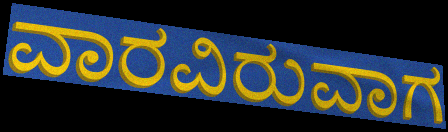
ವಾರವಿರುವಾಗ